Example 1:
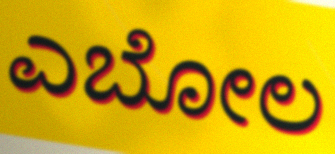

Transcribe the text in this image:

ಎಬೋಲ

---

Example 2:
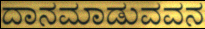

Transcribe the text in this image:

ದಾನಮಾಡುವವನ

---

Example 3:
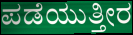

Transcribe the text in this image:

ಪಡೆಯುತ್ತೀರ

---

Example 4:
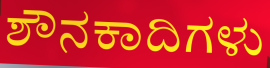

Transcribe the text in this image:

ಶೌನಕಾದಿಗಳು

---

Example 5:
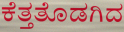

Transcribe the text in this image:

ಕೆತ್ತತೊಡಗಿದ